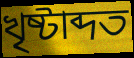
খৃষ্টাব্দত